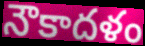
నౌకాదళం